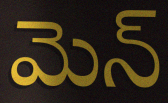
మెన్